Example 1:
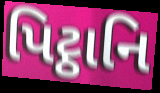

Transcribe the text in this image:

પિટ્ઠાનિ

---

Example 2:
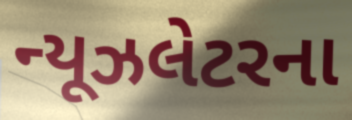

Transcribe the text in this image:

ન્યૂઝલેટરના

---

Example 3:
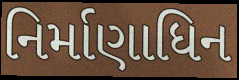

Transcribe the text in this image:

નિર્માણાધિન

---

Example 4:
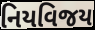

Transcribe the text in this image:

નિયવિજય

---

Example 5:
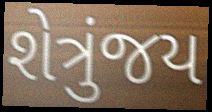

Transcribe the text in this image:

શેત્રુંજય